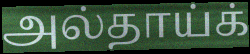
அல்தாய்க்